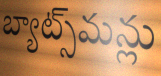
బ్యాట్స్‌మన్లు